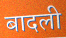
बादली